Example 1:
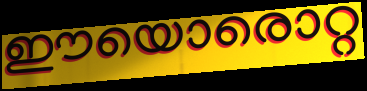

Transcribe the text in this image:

ഈയൊരൊറ്റ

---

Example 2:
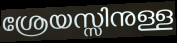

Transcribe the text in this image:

ശ്രേയസ്സിനുള്ള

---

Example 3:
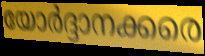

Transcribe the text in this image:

യോർദ്ദാനക്കരെ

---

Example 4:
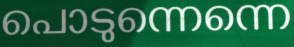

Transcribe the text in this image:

പൊടുന്നെന്നെ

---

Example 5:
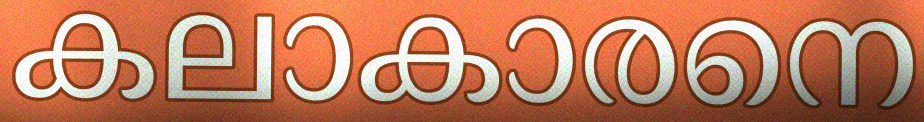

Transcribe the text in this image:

കലാകാരനെ